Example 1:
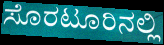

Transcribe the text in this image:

ಸೊರಟೂರಿನಲ್ಲಿ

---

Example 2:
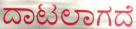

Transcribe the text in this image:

ದಾಟಲಾಗದೆ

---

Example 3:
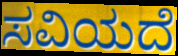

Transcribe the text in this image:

ಸವಿಯದೆ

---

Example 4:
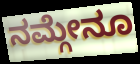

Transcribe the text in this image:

ನಮ್ಗೇನೂ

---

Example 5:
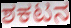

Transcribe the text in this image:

ಶಕಟನ